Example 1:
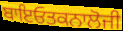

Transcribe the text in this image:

ਬਾਇਓਤਕਨਾਲੋਜੀ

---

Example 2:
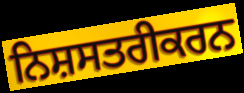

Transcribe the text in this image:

ਨਿਸ਼ਸਤਰੀਕਰਨ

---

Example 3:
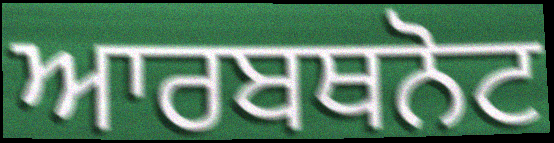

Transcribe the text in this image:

ਆਰਬਥਨੋਟ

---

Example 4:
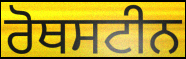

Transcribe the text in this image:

ਰੋਥਸਟੀਨ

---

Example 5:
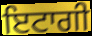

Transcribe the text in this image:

ਇਟਾਗੀ